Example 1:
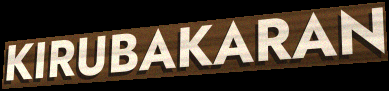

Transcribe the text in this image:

KIRUBAKARAN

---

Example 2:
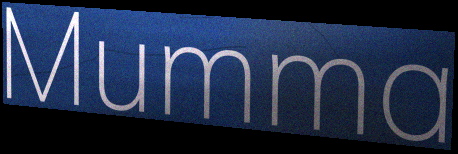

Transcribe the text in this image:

Mumma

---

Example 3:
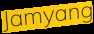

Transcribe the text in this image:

Jamyang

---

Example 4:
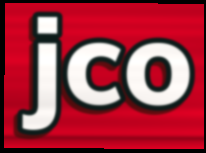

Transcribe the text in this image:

jco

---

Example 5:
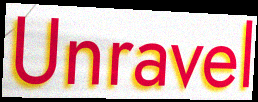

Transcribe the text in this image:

Unravel